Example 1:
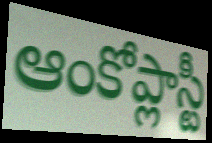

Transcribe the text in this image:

ఆంకోప్లాస్టీ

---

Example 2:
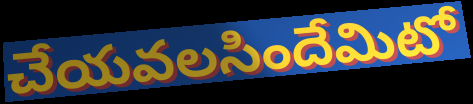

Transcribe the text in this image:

చేయవలసిందేమిటో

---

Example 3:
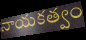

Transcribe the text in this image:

నాయకత్వం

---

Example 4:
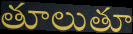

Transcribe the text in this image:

తూలుతూ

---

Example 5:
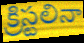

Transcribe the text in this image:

క్రిస్టలినా